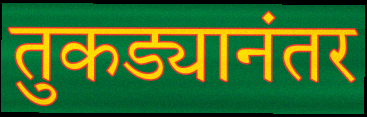
तुकड्यानंतर